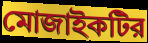
মোজাইকটির